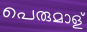
പെരുമാള്